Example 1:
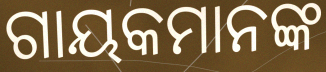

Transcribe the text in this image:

ଗାୟକମାନଙ୍କ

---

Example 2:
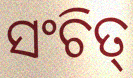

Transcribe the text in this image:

ସଂଚିତ୍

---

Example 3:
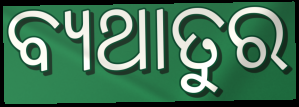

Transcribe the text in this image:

ବ୍ୟଥାତୁର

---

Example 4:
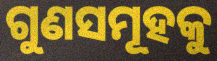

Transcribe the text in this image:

ଗୁଣସମୂହକୁ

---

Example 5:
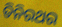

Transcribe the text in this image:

ତିନିରଥର